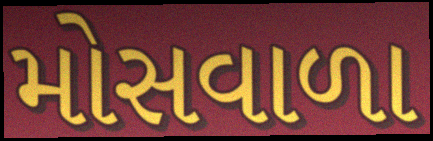
મોસવાળા